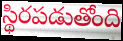
స్థిరపడుతోంది